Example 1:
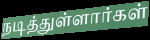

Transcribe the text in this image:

நடித்துள்ளார்கள்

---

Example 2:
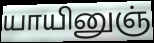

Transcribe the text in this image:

யாயினுஞ்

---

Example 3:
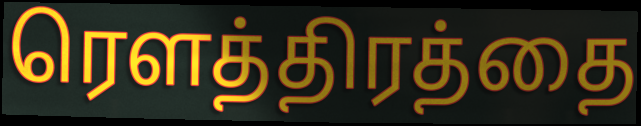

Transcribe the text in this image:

ரௌத்திரத்தை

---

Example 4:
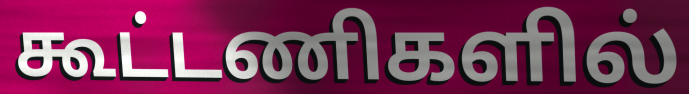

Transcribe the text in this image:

கூட்டணிகளில்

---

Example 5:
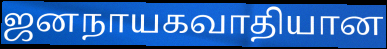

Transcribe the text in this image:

ஜனநாயகவாதியான